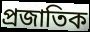
প্ৰজাতিক